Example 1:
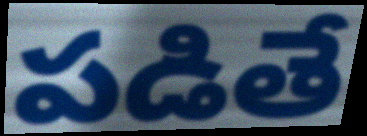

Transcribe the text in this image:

పడితే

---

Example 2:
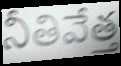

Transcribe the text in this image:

నీతివేత్త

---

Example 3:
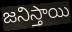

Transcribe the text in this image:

జనిస్తాయి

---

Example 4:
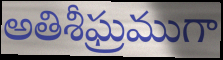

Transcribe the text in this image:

అతిశీఘ్రముగా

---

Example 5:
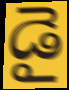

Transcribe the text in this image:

డై